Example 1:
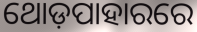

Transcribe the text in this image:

ଥୋଡ଼ପାହାରରେ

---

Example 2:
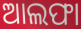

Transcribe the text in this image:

ଆଲଫା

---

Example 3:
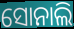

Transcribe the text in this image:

ସୋନାଲି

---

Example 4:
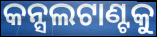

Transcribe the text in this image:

କନ୍ସଲଟାଣ୍ଟକୁ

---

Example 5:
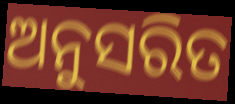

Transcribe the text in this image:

ଅନୁସରିତ